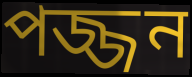
পজ্জন